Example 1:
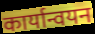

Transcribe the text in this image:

कार्यान्‍वयन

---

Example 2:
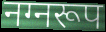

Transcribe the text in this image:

नग्नरूप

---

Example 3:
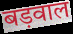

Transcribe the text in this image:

बड़वाल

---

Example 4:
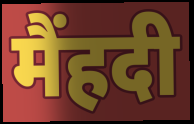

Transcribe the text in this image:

मैंहदी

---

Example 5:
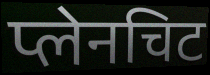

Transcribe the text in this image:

प्लेनचिट